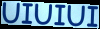
UIUIUI